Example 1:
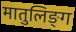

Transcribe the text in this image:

मातुलिङ्ग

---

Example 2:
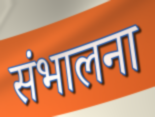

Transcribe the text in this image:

संभालना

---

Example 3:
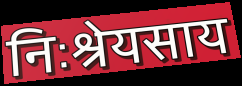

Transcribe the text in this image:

निःश्रेयसाय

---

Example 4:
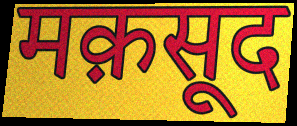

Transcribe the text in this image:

मक़सूद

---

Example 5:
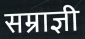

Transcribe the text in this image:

सम्राज्ञी